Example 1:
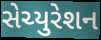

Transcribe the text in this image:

સેચ્યુરેશન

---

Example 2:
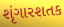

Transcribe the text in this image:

શૃંગારશતક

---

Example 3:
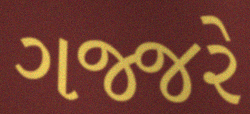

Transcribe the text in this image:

ગજ્જરે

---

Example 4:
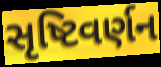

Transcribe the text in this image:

સૃષ્ટિવર્ણન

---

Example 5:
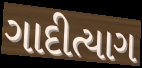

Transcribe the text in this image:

ગાદીત્યાગ